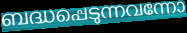
ബദ്ധപ്പെടുന്നവന്നോ